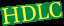
HDLC